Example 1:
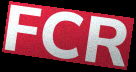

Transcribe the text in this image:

FCR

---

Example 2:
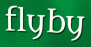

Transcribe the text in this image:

flyby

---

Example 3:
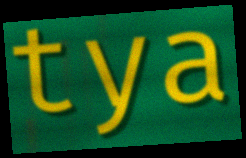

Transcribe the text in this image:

tya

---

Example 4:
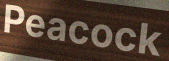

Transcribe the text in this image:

Peacock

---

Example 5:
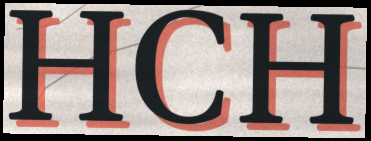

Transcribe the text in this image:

HCH